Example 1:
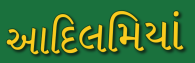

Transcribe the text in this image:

આદિલમિયાં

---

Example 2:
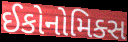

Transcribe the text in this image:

ઈકોનોમિક્સ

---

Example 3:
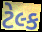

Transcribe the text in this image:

ટેલ્ક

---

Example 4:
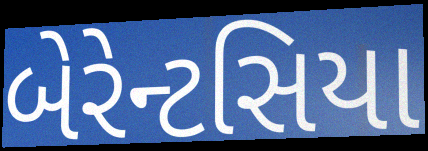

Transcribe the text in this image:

બેરેન્ટસિયા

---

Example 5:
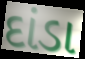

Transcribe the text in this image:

દાંડા